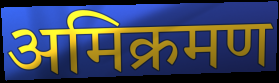
अमिक्रमण